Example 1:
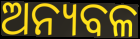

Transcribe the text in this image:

ଅନ୍ୟବଳ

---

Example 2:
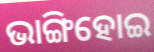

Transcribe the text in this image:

ଭାଙ୍ଗିହୋଇ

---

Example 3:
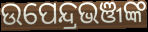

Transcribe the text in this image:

ଉପେନ୍ଦ୍ରଭଞ୍ଜଙ୍କ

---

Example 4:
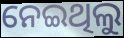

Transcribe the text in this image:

ନେଇଥିଲୁ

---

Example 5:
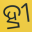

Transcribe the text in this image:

ହ୍ରୀ